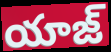
యాజ్